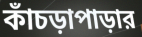
কাঁচড়াপাড়ার